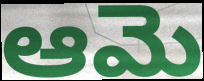
ఆమె